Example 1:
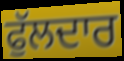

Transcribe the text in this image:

ਫੁੱਲਦਾਰ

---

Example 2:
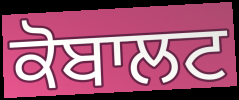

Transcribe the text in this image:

ਕੋਬਾਲਟ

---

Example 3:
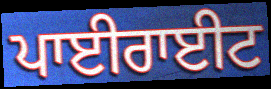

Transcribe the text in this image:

ਪਾਈਰਾਈਟ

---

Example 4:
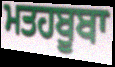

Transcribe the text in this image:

ਮਤਹਬੂਬਾ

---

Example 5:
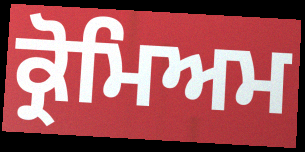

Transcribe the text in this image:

ਕ੍ਰੋਮਿਅਮ